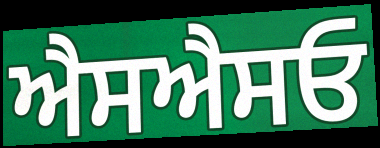
ਐਸਐਸਓ